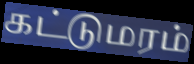
கட்டுமரம்